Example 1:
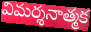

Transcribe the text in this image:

విమర్శనాత్మక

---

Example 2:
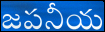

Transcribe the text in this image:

జపనీయ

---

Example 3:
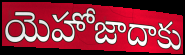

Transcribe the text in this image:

యెహోజాదాకు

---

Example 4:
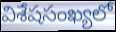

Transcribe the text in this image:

విశేషసంఖ్యలో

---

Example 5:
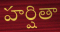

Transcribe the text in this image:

హర్షితా